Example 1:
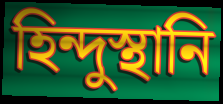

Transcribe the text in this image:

হিন্দুস্থানি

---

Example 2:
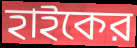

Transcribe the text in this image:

হাইকের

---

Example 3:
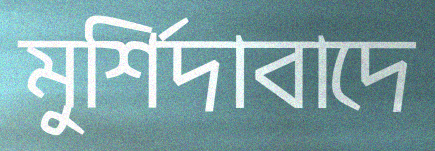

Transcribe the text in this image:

মুর্শিদাবাদে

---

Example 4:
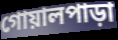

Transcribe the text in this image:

গোয়ালপাড়া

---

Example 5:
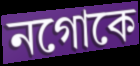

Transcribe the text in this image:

নগোকে